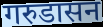
गरुडासन